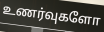
உணர்வுகளோ